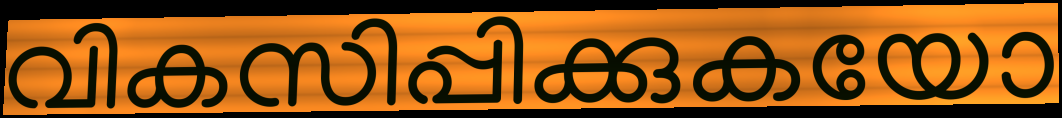
വികസിപ്പിക്കുകയോ